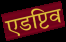
एडप्टिव